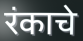
रंकाचे